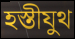
হস্তীযুথ